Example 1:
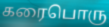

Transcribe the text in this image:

கரைபொரு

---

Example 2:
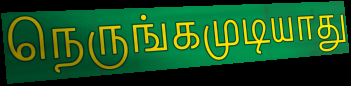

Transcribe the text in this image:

நெருங்கமுடியாது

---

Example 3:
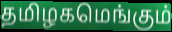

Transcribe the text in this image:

தமிழகமெங்கும்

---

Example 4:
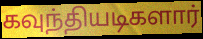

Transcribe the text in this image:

கவுந்தியடிகளார்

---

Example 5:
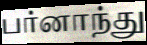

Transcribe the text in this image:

பர்னாந்து